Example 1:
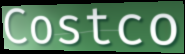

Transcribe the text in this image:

Costco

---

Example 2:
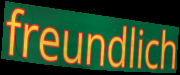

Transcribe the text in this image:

freundlich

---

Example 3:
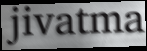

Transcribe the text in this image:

jivatma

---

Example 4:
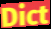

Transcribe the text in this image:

Dict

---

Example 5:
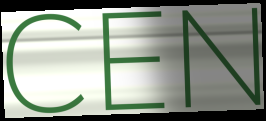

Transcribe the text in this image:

CEN